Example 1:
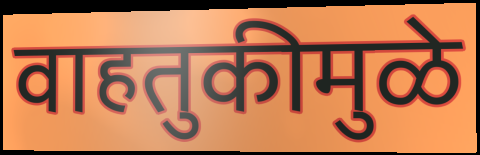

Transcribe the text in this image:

वाहतुकीमुळे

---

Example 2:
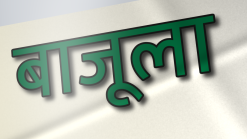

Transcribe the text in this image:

बाजूला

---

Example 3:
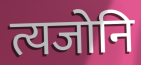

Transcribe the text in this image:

त्यजोनि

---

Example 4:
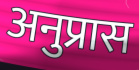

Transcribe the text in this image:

अनुप्रास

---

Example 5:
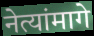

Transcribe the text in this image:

नेत्यांमागे